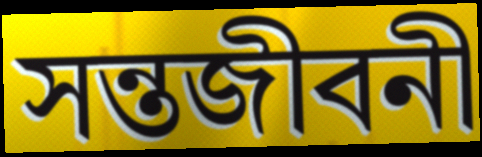
সন্তজীবনী